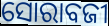
ସୋରାବଜୀ